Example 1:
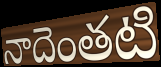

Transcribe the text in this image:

నాదెంతటి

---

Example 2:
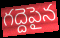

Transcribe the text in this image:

గద్దెపైన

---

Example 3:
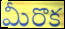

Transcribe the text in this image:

మీరొక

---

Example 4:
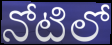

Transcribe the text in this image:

నోటిలో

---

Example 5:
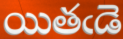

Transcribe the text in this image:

యితఁడె